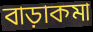
বাড়াকমা